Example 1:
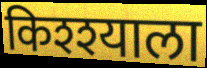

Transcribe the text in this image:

किश्श्याला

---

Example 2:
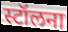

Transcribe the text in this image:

स्टॉलना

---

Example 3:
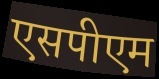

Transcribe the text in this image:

एसपीएम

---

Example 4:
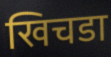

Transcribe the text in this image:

खिचडा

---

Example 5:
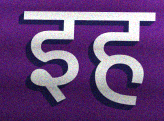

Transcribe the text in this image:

इह